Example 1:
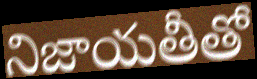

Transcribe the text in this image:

నిజాయతీతో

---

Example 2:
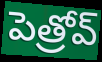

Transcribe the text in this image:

పెత్రోవ్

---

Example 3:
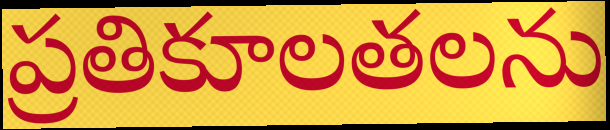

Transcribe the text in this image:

ప్రతికూలతలను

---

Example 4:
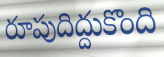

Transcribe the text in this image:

రూపుదిద్దుకొంది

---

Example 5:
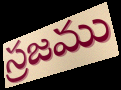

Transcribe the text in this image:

స్రజము